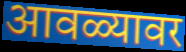
आवळ्यावर